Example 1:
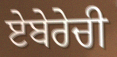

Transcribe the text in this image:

ਏਬੇਰੇਚੀ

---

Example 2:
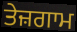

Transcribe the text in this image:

ਤੇਜ਼ਗਾਮ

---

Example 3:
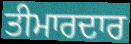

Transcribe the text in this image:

ਤੀਮਾਰਦਾਰ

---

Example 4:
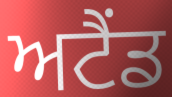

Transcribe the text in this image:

ਅਟੈਂਡ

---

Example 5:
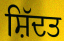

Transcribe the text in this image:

ਸ਼ਿੱਦਤ